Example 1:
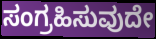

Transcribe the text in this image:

ಸಂಗ್ರಹಿಸುವುದೇ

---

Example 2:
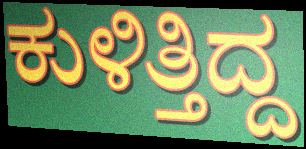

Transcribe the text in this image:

ಕುಳಿತ್ತಿದ್ದ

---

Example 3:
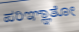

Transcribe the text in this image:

ಪರಿಞ್ಞಾತೋ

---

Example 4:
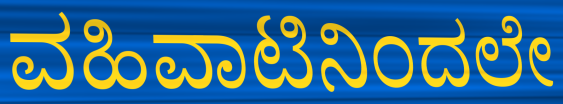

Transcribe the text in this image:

ವಹಿವಾಟಿನಿಂದಲೇ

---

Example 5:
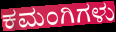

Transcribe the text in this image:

ಕಮಂಗಿಗಳು